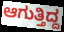
ಆಗುತ್ತಿದ್ದ